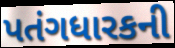
પતંગધારકની